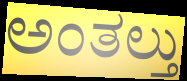
ಅಂತಲ್ತು